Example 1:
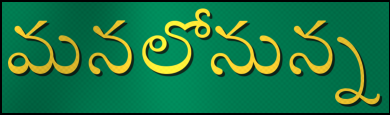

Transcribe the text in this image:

మనలోనున్న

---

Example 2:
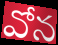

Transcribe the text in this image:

వోన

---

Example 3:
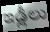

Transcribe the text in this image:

ఇడ్లీలు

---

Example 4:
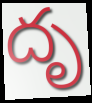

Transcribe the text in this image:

దృ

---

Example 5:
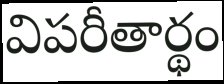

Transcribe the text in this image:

విపరీతార్థం